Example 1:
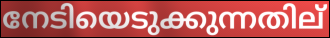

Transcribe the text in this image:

നേടിയെടുക്കുന്നതില്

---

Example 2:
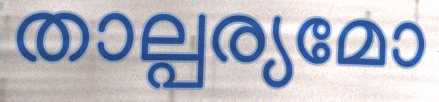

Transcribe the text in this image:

താല്പര്യമോ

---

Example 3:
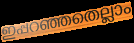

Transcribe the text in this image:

ഇപ്പറഞ്ഞതെല്ലാം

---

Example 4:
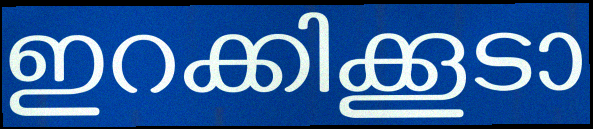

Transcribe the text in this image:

ഇറക്കിക്കൂടാ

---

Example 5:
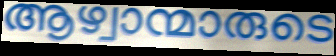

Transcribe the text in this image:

ആഴ്വാന്മാരുടെ